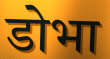
डोभा